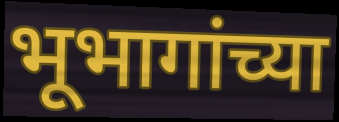
भूभागांच्या